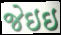
જેઇઇ